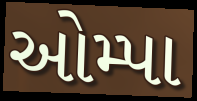
ઓમ્પા